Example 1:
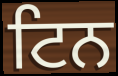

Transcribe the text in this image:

ਟਿਨ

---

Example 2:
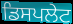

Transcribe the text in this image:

ਡਿਸਪਲੇਟ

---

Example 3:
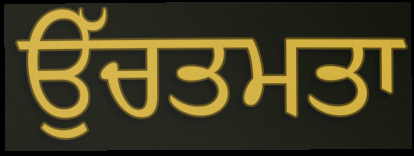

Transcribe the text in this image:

ਉੱਚਤਮਤਾ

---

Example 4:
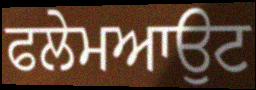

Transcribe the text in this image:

ਫਲੇਮਆਉਟ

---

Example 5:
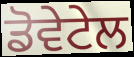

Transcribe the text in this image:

ਡੋਵੇਟੇਲ